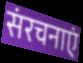
संरचनाएं